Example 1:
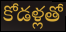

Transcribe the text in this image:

కోడళ్లతో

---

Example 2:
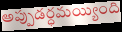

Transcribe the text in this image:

అప్పుడర్ధమయ్యింది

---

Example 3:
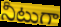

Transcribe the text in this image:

నీటుగా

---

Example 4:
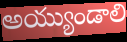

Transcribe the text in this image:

అయ్యుండాలి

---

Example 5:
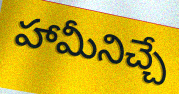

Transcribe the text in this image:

హామీనిచ్చే